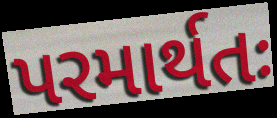
પરમાર્થતઃ